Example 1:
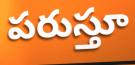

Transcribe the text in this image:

పరుస్తూ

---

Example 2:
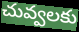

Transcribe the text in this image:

చువ్వలకు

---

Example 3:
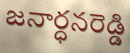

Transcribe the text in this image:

జనార్ధనరెడ్డి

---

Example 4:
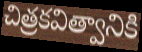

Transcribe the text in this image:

చిత్రకవిత్వానికి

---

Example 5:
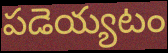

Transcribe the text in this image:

పడెయ్యటం